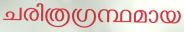
ചരിത്രഗ്രന്ഥമായ